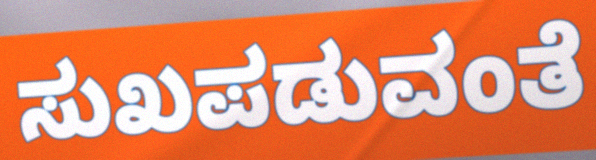
ಸುಖಪಡುವಂತೆ